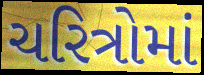
ચરિત્રોમાં